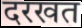
दरखत